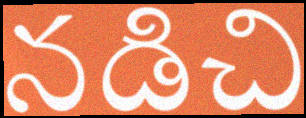
నడిచి